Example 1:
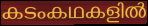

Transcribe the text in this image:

കടംകഥകളിൽ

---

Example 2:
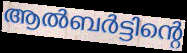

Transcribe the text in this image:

ആൽബർട്ടിന്റെ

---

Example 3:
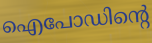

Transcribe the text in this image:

ഐപോഡിന്റെ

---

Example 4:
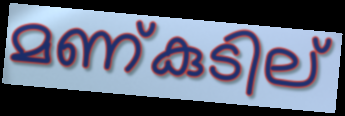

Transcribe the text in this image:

മണ്കുടില്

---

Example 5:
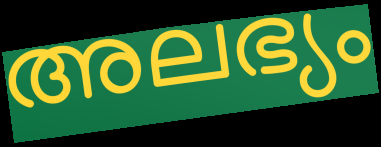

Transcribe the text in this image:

അലഭ്യം